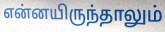
என்னயிருந்தாலும்